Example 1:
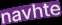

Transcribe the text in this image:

navhte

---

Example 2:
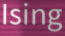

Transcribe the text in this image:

Ising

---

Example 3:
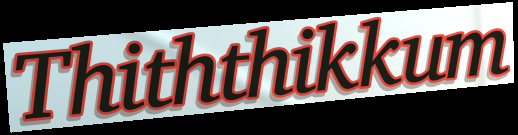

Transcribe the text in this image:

Thiththikkum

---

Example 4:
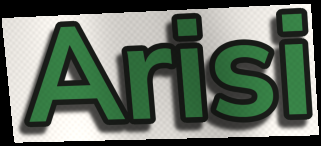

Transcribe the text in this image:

Arisi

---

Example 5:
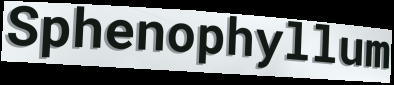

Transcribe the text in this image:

Sphenophyllum